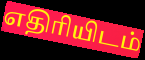
எதிரியிடம்